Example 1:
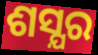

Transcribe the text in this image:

ଶସ୍ଯର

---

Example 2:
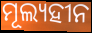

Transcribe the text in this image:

ମୂଲ୍ଯହୀନ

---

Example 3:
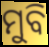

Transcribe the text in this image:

ମୁବି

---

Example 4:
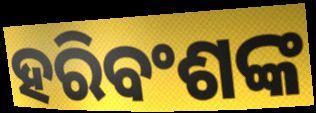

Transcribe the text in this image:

ହରିବଂଶଙ୍କ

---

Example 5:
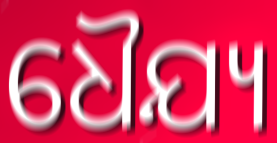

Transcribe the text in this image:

ଧୈଯ୍ଯ